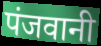
पंजवानी